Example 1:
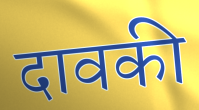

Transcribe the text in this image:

दावकी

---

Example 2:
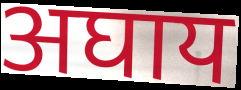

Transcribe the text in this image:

अघाय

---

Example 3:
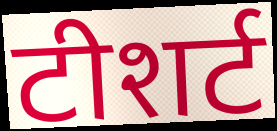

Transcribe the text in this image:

टीशर्ट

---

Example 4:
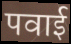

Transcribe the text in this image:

पवाई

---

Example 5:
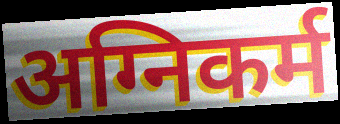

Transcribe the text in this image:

अग्निकर्म